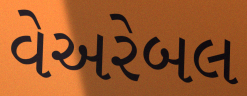
વેઅરેબલ